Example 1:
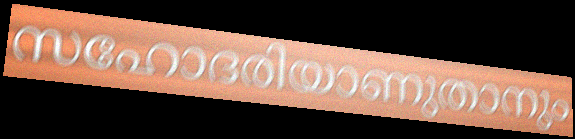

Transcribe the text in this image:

സഹോദരിയാണുതാനും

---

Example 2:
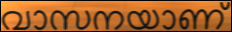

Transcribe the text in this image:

വാസനയാണ്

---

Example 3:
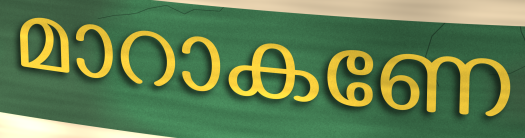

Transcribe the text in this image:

മാറാകണേ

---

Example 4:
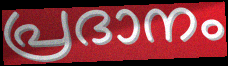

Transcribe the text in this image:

പ്രദാനം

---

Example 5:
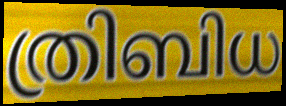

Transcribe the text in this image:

ത്രിബിധ